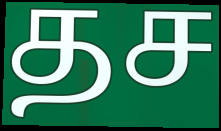
தச